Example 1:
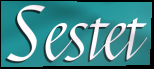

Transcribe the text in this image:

Sestet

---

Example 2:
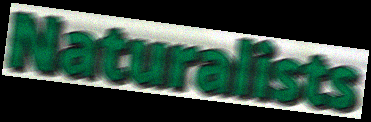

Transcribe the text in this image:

Naturalists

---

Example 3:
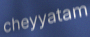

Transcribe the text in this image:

cheyyatam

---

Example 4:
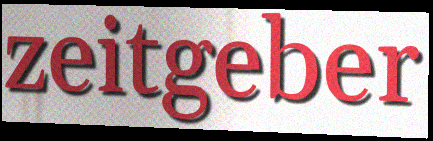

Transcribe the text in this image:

zeitgeber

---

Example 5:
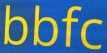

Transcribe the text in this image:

bbfc